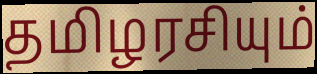
தமிழரசியும்